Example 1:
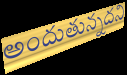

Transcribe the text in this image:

అందుతున్నదని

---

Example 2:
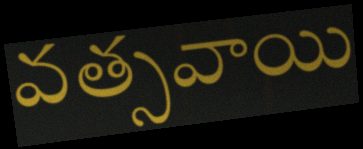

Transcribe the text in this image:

వత్సవాయి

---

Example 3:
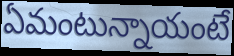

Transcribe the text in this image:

ఏమంటున్నాయంటే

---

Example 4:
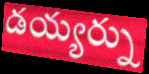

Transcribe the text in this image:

డయ్యర్ను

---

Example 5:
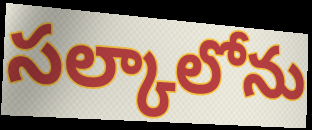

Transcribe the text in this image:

సల్కాలోను